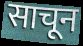
साचून